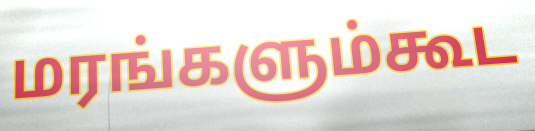
மரங்களும்கூட